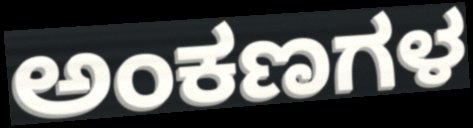
ಅಂಕಣಗಳ